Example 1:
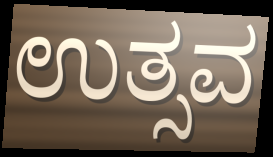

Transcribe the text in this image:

ಉತ್ಸವ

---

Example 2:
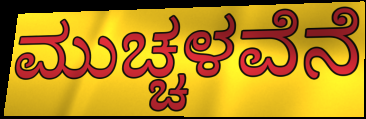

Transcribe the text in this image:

ಮುಚ್ಚಳವೆನೆ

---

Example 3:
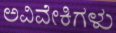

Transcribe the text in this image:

ಅವಿವೇಕಿಗಳು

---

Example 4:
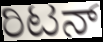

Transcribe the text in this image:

ರಿಟನ್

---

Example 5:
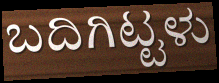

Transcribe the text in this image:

ಬದಿಗಿಟ್ಟಳು